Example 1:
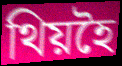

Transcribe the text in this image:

থিয়হৈ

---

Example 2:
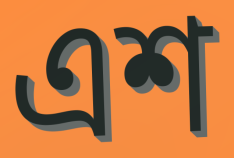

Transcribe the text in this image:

এশ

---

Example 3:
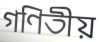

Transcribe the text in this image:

গণিতীয়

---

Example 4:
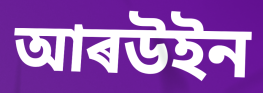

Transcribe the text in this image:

আৰউইন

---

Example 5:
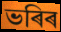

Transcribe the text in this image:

ভৰিৰ